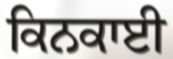
ਕਿਨਕਾਈ